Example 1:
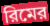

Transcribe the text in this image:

রিমের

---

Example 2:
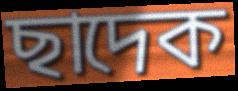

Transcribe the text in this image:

ছাদেক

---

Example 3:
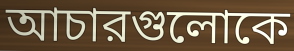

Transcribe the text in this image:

আচারগুলোকে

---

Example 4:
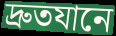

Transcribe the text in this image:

দ্রুতযানে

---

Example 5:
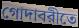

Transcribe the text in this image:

গোদাবরীতে